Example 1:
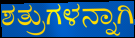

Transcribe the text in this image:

ಶತ್ರುಗಳನ್ನಾಗಿ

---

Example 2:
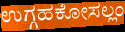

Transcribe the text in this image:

ಉಗ್ಗಹಕೋಸಲ್ಲಂ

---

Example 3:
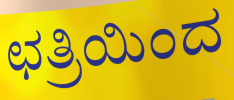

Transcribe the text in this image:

ಛತ್ರಿಯಿಂದ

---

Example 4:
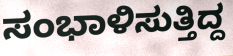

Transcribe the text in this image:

ಸಂಭಾಳಿಸುತ್ತಿದ್ದ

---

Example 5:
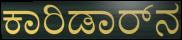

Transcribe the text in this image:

ಕಾರಿಡಾರ್‌ನ